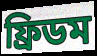
ফ্রিডম